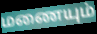
மணையும்